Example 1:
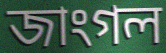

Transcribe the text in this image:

জাংগল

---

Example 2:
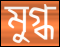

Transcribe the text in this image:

মুগ্ধ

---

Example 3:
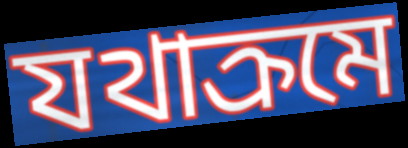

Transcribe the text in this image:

যথাক্ৰমে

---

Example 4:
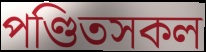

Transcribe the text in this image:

পণ্ডিতসকল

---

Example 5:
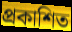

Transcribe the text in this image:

প্ৰকাশিত